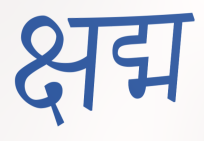
क्षद्म